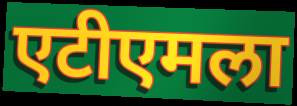
एटीएमला